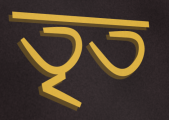
তৃত